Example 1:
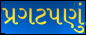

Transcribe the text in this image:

પ્રગટપણું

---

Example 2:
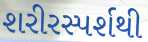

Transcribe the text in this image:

શરીરસ્પર્શથી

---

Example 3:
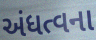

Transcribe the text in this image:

અંધત્વના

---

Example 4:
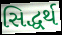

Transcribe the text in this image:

સિદ્ધર્થ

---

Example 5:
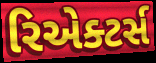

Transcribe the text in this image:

રિએક્ટર્સ